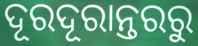
ଦୂରଦୂରାନ୍ତରରୁ